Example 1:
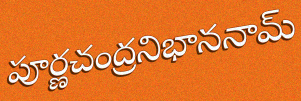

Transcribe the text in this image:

పూర్ణచంద్రనిభాననామ్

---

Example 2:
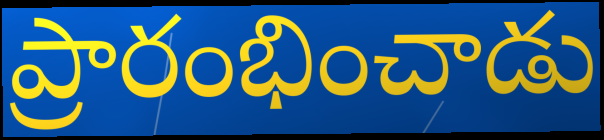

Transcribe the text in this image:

ప్రారంభించాడు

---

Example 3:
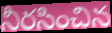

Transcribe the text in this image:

నీరసించిన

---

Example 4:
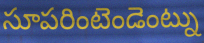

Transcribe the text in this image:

సూపరింటెండెంట్ను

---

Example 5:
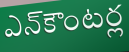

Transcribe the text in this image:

ఎన్‌కౌంటర్ల